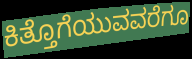
ಕಿತ್ತೊಗೆಯುವವರೆಗೂ